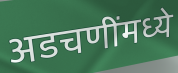
अडचणींमध्ये